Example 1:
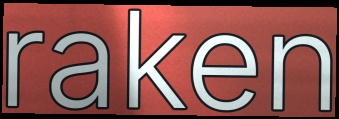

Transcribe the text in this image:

raken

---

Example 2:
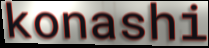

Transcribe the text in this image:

konashi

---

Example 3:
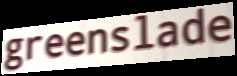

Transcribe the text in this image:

greenslade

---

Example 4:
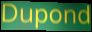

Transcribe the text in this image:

Dupond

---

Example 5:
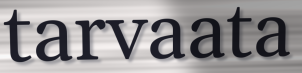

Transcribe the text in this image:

tarvaata